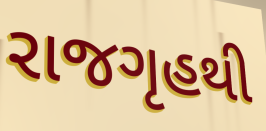
રાજગૃહથી